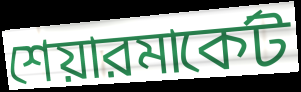
শেয়ারমার্কেট